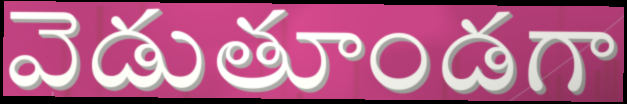
వెడుతూండగా